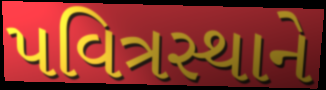
પવિત્રસ્થાને